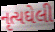
નૃત્યઘેલી